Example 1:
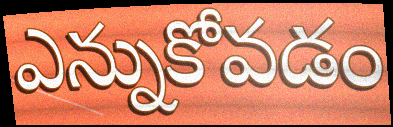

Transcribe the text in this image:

ఎన్నుకోవడం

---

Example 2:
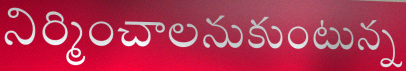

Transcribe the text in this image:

నిర్మించాలనుకుంటున్న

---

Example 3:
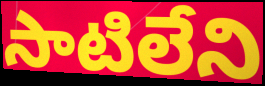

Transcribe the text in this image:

సాటిలేని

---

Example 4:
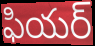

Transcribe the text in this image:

ఫియర్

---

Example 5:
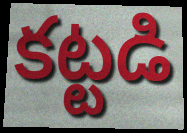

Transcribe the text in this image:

కట్టడి